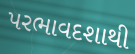
પરભાવદશાથી